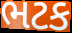
ભટક